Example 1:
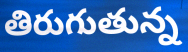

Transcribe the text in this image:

తిరుగుతున్న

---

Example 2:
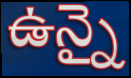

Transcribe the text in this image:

ఉన్నై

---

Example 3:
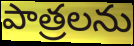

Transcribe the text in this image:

పాత్రలను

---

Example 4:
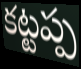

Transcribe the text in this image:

కట్టప్ప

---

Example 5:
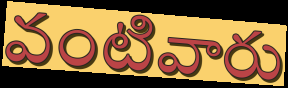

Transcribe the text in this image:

వంటివారు